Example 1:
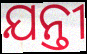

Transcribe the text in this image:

ଯନ୍ତୀ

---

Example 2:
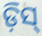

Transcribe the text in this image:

ଡ଼ିସ୍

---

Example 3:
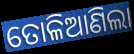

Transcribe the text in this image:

ତୋଳିଆଣିଲା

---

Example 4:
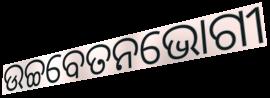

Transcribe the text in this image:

ଉଚ୍ଚବେତନଭୋଗୀ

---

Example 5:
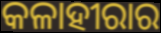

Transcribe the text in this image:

କଳାହୀରାର